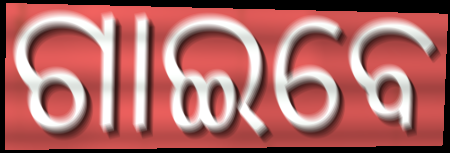
ଗାଇବେ